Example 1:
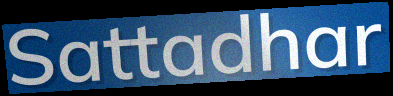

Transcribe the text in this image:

Sattadhar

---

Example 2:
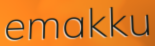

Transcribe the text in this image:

emakku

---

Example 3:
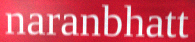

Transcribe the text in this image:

naranbhatt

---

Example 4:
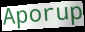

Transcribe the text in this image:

Aporup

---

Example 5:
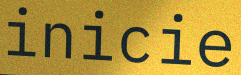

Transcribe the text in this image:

inicie